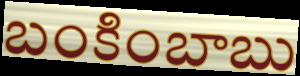
బంకింబాబు